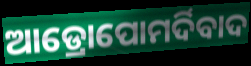
ଆଡ୍ରୋପୋମର୍ଦିବାଦ